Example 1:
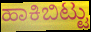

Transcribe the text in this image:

ಹಾಕಿಬಿಟ್ಟು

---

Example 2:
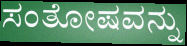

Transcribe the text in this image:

ಸಂತೋಷವನ್ನು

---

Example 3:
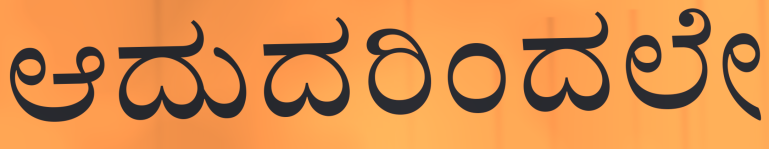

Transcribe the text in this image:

ಆದುದರಿಂದಲೇ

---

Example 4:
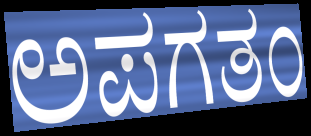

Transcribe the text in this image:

ಅಪಗತಂ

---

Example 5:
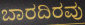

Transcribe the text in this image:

ಬಾರದಿರವು